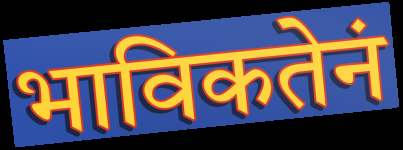
भाविकतेनं